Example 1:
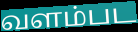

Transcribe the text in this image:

வளம்பட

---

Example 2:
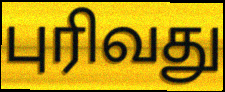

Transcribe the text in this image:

புரிவது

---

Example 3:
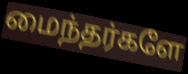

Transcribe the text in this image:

மைந்தர்களே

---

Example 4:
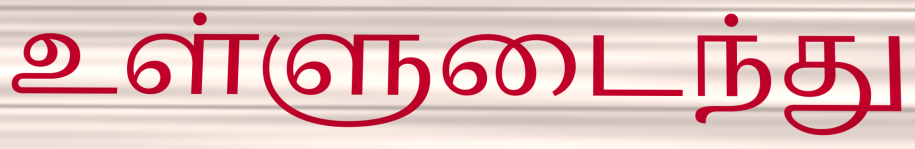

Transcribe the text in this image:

உள்ளுடைந்து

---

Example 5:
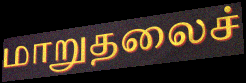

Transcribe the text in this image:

மாறுதலைச்